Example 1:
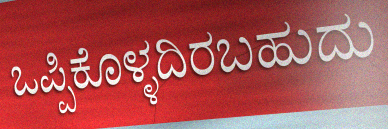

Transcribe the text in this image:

ಒಪ್ಪಿಕೊಳ್ಳದಿರಬಹುದು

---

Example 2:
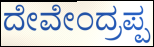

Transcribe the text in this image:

ದೇವೇಂದ್ರಪ್ಪ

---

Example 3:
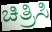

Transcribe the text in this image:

ಚಿತ್ರಿಸಿ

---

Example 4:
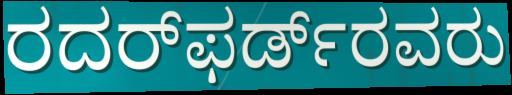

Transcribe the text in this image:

ರದರ್‌ಫರ್ಡ್‌ರವರು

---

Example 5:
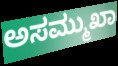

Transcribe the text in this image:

ಅಸಮ್ಮುಖಾ